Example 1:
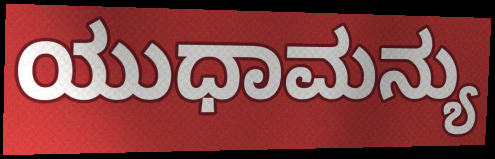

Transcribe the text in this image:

ಯುಧಾಮನ್ಯು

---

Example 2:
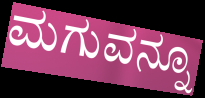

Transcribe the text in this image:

ಮಗುವನ್ನೂ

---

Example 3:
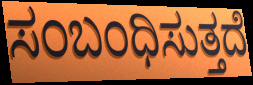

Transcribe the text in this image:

ಸಂಬಂಧಿಸುತ್ತದೆ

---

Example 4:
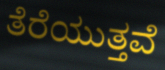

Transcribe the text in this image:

ತೆರೆಯುತ್ತವೆ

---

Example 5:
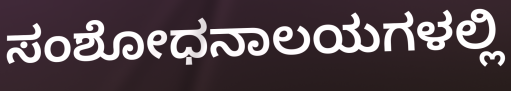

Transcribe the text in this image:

ಸಂಶೋಧನಾಲಯಗಳಲ್ಲಿ